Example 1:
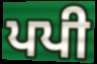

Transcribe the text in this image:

ਪਪੀ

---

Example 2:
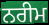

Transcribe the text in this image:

ਨਰੀਮ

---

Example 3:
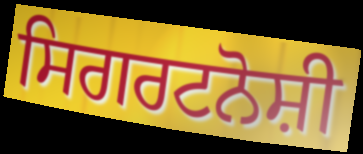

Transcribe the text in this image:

ਸਿਗਰਟਨੋਸ਼ੀ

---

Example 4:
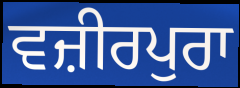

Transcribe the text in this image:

ਵਜ਼ੀਰਪੁਰਾ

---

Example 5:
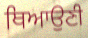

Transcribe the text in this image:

ਥਿਆਉਣੀ